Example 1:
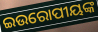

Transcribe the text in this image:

ଇଉରୋପୀୟଙ୍କ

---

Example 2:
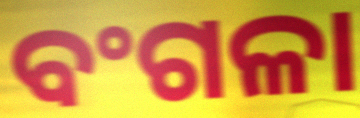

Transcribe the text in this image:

ବଂଗଳା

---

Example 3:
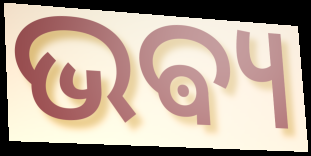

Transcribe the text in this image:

ଭଵ୍ୟ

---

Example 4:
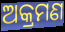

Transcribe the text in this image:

ଅକ୍ରମଣ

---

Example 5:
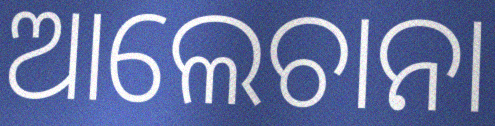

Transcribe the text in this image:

ଆଲେଚାନା